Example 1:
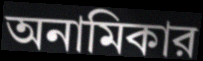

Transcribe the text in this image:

অনামিকার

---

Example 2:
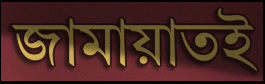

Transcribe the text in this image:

জামায়াতই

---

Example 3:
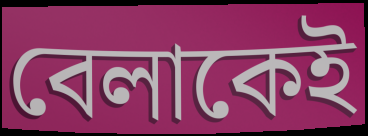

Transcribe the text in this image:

বেলাকেই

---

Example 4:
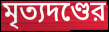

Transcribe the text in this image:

মৃত্যদণ্ডের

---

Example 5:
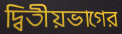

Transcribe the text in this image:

দ্বিতীয়ভাগের